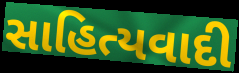
સાહિત્યવાદી